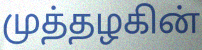
முத்தழகின்